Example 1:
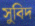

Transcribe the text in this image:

সুবিদ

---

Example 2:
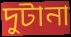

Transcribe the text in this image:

দুটানা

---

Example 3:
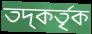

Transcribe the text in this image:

তদ্‌কর্তৃক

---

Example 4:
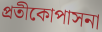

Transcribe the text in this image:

প্রতীকোপাসনা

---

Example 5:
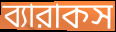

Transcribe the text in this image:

ব্যারাকস